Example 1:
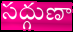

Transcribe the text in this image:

సద్గుణా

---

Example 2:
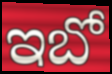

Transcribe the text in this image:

ఇబో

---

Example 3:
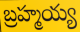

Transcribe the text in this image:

బ్రహ్మయ్య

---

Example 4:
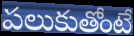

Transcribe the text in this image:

పలుకుతోంటే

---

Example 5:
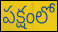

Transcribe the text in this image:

పక్షంలో